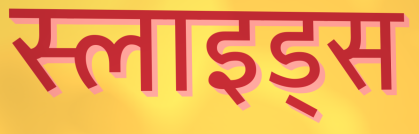
स्लाइड्स